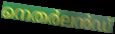
നെതർലൻഡ്